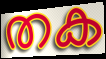
തക